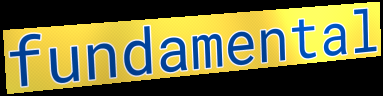
fundamental